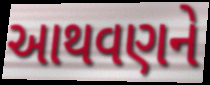
આથવણને